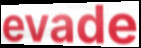
evade